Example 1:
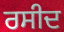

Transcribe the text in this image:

ਰਸੀਦ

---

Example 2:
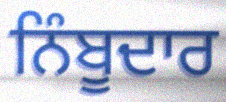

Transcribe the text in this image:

ਨਿੰਬੂਦਾਰ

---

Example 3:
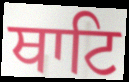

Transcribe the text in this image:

ਥਾਟਿ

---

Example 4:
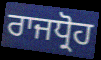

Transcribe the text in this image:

ਰਾਜਧ੍ਰੋਹ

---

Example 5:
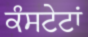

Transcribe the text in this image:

ਕੰਸਟੇਟਾਂ